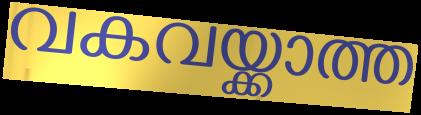
വകവയ്ക്കാത്ത